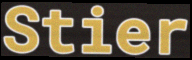
Stier